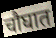
चौघात